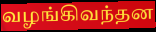
வழங்கிவந்தன